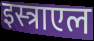
इस्त्राएल